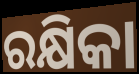
ରକ୍ଷିକା